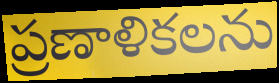
ప్రణాళికలను